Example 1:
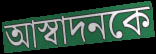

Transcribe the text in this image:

আস্বাদনকে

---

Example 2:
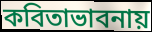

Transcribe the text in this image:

কবিতাভাবনায়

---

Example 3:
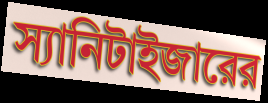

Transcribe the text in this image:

স্যানিটাইজারের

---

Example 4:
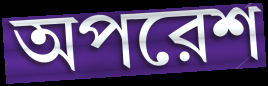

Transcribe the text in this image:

অপরেশ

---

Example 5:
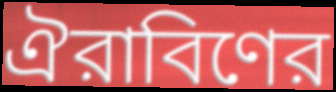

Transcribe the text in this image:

ঐরাবিণের